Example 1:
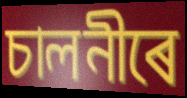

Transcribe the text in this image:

চালনীৰে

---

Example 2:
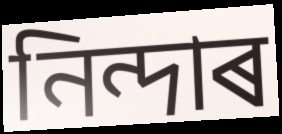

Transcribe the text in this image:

নিন্দাৰ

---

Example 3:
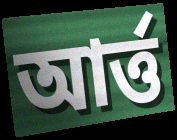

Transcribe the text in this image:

আৰ্ত্ত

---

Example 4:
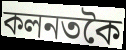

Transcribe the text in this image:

কলনতকৈ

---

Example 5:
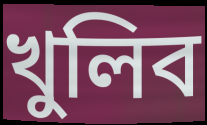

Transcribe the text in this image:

খুলিব